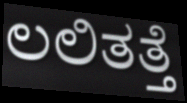
ಲಲಿತತ್ತೆ